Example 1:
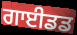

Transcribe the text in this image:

ਗਾਈਡਡ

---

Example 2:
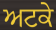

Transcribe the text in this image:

ਅਟਕੇ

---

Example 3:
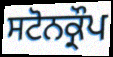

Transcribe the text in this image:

ਸਟੋਨਕ੍ਰੌਪ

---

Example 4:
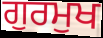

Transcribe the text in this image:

ਗੁਰਮੁਖ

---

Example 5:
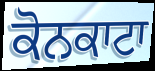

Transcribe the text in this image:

ਕੋਨਕਾਟਾ